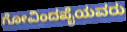
ಗೋವಿಂದಪೈಯವರು